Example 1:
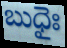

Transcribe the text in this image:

బుధైః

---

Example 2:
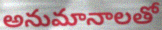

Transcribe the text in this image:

అనుమానాలతో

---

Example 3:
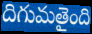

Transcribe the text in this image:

దిగుమతైంది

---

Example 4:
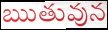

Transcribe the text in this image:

ఋతువున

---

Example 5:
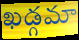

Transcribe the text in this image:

ఖడ్గమా